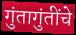
गुंतागुंतींचे